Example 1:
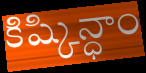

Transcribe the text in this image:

కిష్కిన్ధాం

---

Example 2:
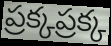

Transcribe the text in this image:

ప్రక్కప్రక్క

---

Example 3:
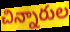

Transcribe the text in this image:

చిన్నారుల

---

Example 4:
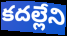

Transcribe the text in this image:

కదల్లేని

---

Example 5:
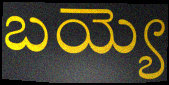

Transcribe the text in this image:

బయ్యె